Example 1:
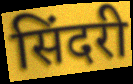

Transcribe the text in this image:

सिंदरी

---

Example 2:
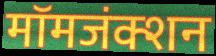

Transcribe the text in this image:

मॉमजंक्शन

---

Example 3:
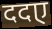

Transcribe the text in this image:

ददए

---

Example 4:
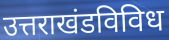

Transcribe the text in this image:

उत्तराखंडविविध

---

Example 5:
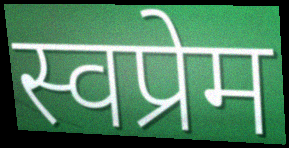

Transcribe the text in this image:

स्वप्रेम